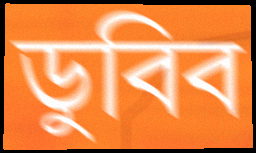
ডুবিব